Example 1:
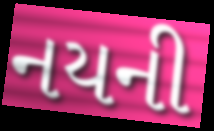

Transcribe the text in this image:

નયની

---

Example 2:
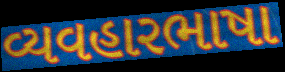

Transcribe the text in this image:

વ્યવહારભાષા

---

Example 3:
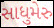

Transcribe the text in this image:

સાધુમેરુ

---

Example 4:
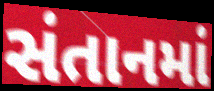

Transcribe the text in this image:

સંતાનમાં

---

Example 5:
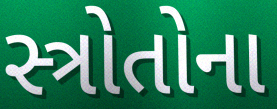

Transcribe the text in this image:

સ્ત્રોતોના